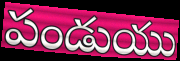
పండుయు